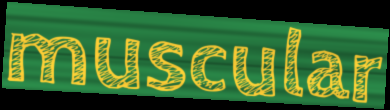
muscular